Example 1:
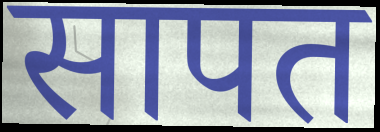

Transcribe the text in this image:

सापत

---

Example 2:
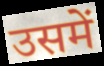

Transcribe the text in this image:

उसमें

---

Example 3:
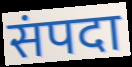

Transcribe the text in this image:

संपदा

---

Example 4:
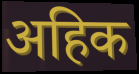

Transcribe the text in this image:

अहिक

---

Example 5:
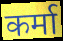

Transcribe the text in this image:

कर्मा